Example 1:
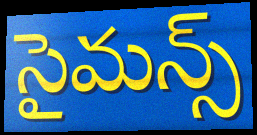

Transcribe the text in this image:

సైమన్స్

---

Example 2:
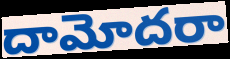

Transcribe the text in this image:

దామోదరా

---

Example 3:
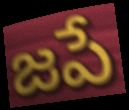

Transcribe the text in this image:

జపే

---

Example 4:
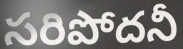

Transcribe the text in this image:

సరిపోదనీ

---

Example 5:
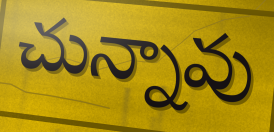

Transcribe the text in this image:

చున్నావు